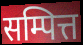
सम्पित्त